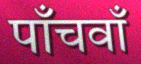
पाँचवाँ